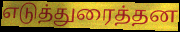
எடுத்துரைத்தன